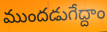
ముందడుగేద్దాం